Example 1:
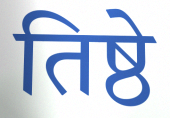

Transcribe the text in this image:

तिष्ठे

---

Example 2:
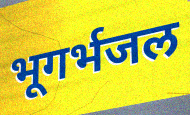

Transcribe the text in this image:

भूगर्भजल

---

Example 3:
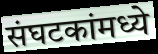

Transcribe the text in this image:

संघटकांमध्ये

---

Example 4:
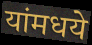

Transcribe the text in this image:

यांमधये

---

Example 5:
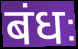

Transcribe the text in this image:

बंधः